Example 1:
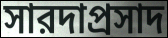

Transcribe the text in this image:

সারদাপ্রসাদ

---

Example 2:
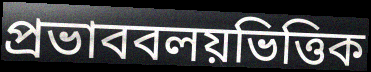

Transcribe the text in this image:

প্রভাববলয়ভিত্তিক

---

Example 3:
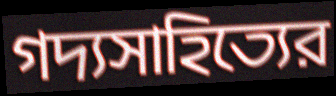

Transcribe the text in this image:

গদ্যসাহিত্যের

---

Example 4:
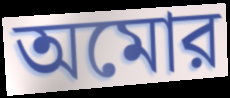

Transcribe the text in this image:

অমোর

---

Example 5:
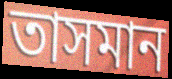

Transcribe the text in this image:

তাসমান